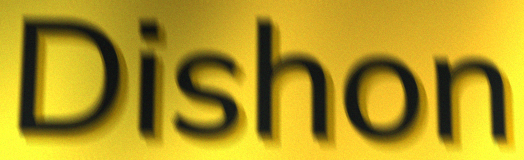
Dishon